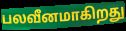
பலவீனமாகிறது